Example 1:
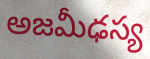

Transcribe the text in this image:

అజమీఢస్య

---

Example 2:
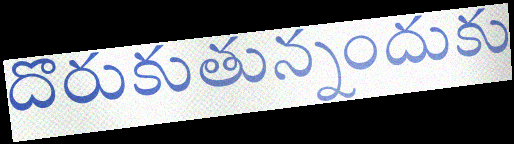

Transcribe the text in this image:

దొరుకుతున్నందుకు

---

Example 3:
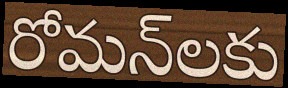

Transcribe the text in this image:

రోమన్‌లకు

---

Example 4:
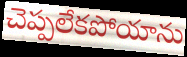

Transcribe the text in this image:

చెప్పలేకపోయాను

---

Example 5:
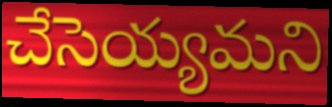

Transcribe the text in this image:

చేసెయ్యమని